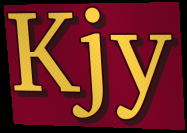
Kjy